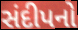
સંદીપનો